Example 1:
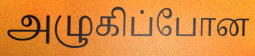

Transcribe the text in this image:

அழுகிப்போன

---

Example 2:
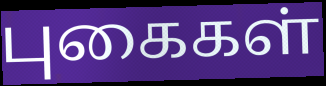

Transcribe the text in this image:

புகைகள்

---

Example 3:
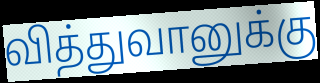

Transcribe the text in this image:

வித்துவானுக்கு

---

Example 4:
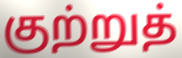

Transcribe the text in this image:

குற்றுத்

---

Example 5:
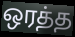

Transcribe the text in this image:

ஒரத்த